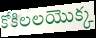
కోకిలలయొక్క